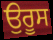
ਉਰੂਸ